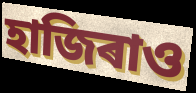
হাজিৰাও